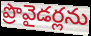
ప్రొవైడర్లను